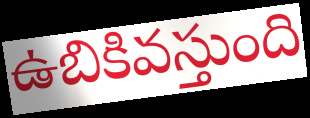
ఉబికివస్తుంది